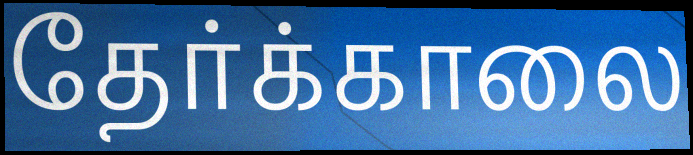
தேர்க்காலை